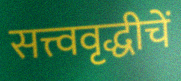
सत्त्ववृद्धीचें